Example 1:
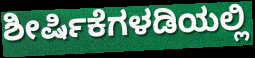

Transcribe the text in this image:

ಶೀರ್ಷಿಕೆಗಳಡಿಯಲ್ಲಿ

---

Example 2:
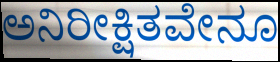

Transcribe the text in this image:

ಅನಿರೀಕ್ಷಿತವೇನೂ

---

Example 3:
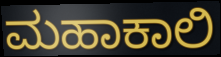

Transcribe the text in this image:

ಮಹಾಕಾಲಿ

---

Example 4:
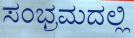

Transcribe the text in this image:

ಸಂಭ್ರಮದಲ್ಲಿ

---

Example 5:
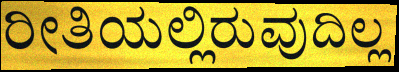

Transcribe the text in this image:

ರೀತಿಯಲ್ಲಿರುವುದಿಲ್ಲ